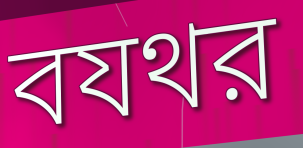
বযথর